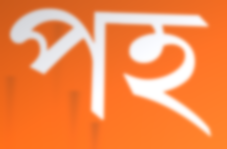
পহ